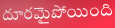
దూరమైపోయింది